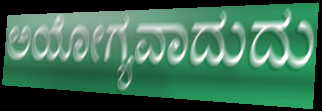
ಅಯೋಗ್ಯವಾದುದು